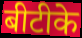
बीटीके